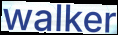
walker